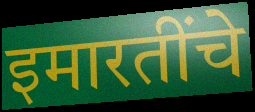
इमारतींचे